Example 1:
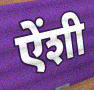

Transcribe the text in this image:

ऐंशी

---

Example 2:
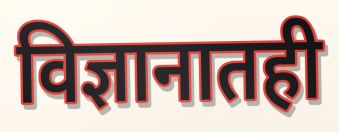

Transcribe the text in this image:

विज्ञानातही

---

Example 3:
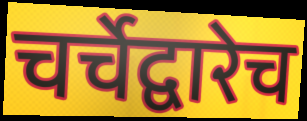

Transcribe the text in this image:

चर्चेद्वारेच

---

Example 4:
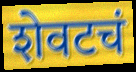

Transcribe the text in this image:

शेवटचं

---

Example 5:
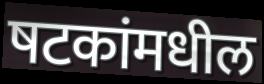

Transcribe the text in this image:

षटकांमधील